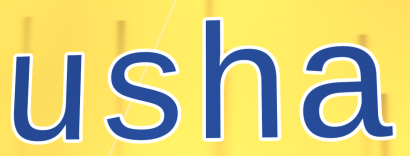
usha